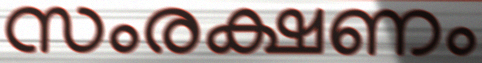
സംരക്ഷണം